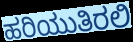
ಹರಿಯುತಿರಲಿ